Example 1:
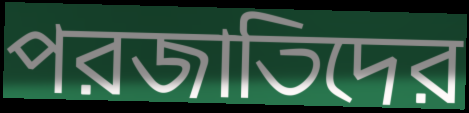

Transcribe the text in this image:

পরজাতিদের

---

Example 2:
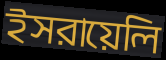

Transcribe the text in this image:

ইসরায়েলি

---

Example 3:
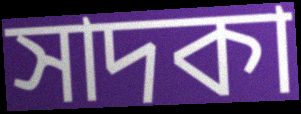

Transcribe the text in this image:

সাদকা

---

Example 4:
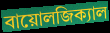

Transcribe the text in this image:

বায়োলজিক্যাল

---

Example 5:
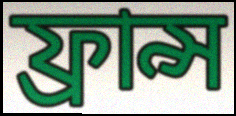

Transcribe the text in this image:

ফ্রান্স